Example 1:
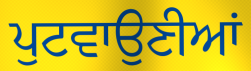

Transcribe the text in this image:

ਪੁਟਵਾਉਣੀਆਂ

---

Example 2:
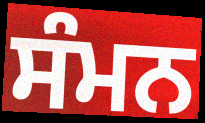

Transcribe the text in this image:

ਸੰਮਨ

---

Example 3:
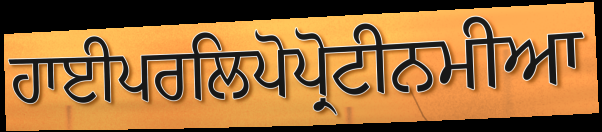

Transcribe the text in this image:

ਹਾਈਪਰਲਿਪੋਪ੍ਰੋਟੀਨਮੀਆ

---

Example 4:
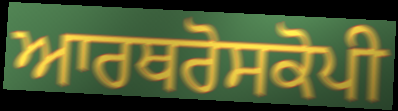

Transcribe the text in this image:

ਆਰਥਰੋਸਕੋਪੀ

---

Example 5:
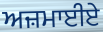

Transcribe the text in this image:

ਅਜ਼ਮਾਈਏ